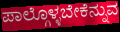
ಪಾಲ್ಗೊಳ್ಳಬೇಕೆನ್ನುವ